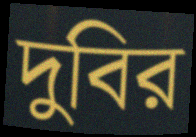
দুবির